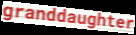
granddaughter